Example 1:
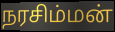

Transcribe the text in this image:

நரசிம்மன்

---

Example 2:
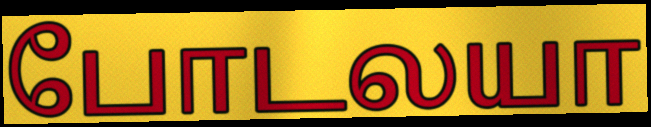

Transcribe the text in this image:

போடலயா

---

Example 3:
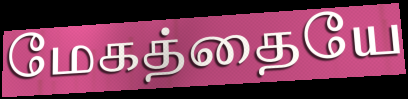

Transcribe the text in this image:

மேகத்தையே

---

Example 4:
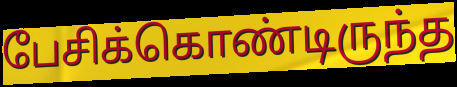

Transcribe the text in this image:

பேசிக்கொண்டிருந்த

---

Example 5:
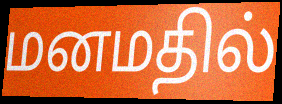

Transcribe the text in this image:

மனமதில்